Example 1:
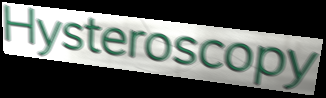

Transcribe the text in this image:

Hysteroscopy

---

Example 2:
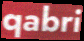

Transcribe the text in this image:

qabri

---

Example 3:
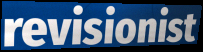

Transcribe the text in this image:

revisionist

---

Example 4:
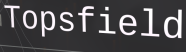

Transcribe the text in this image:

Topsfield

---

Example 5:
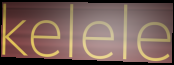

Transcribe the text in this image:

kelele